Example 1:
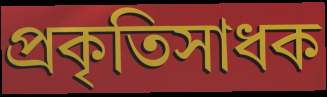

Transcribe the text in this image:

প্রকৃতিসাধক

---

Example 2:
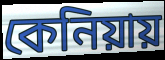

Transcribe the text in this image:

কেনিয়ায়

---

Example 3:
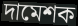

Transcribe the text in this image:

দামেশক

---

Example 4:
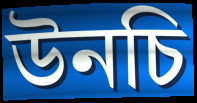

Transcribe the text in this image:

উনচি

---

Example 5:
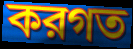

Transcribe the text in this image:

করগত